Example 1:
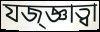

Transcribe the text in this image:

যজ্জ্ঞাত্বা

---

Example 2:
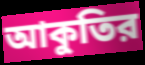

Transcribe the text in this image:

আকুতির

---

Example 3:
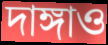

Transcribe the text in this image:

দাঙ্গাও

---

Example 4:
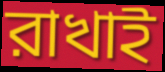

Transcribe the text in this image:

রাখাই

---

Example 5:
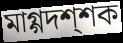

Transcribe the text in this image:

মাগ্গদশ্শক